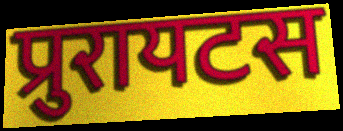
प्रुरायटस